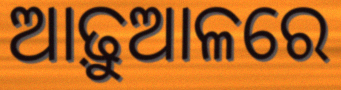
ଆଢ଼ୁଆଳରେ